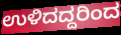
ಉಳಿದದ್ದರಿಂದ